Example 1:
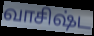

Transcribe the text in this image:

வாசிஷ்ட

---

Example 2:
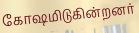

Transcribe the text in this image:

கோஷமிடுகின்றனர்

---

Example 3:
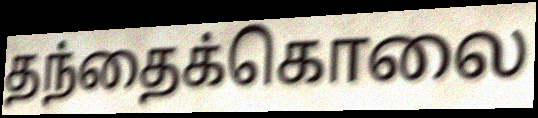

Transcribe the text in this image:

தந்தைக்கொலை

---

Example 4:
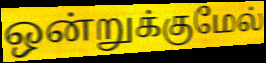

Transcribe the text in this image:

ஒன்றுக்குமேல்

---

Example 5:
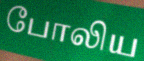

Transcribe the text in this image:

போலிய